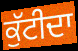
ਕੁੱਟੀਦਾ